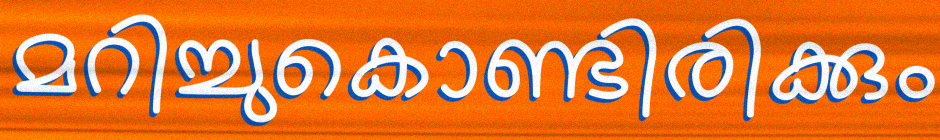
മറിച്ചുകൊണ്ടിരിക്കും